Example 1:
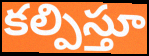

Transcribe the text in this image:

కల్పిస్తూ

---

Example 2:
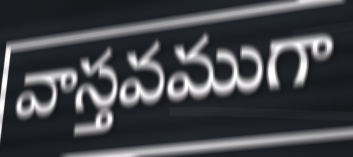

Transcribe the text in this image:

వాస్తవముగా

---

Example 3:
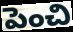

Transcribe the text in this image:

పెంచి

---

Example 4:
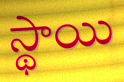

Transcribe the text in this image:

స్థాయి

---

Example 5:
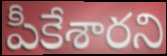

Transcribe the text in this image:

పీకేశారని